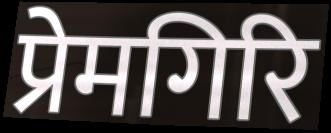
प्रेमगिरि